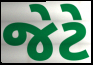
જેટે